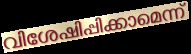
വിശേഷിപ്പിക്കാമെന്ന്